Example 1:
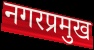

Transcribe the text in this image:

नगरप्रमुख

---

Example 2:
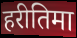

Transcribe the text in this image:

हरीतिमा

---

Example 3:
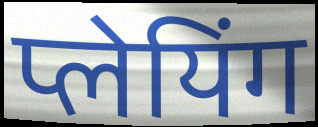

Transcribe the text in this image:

प्लेयिंग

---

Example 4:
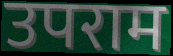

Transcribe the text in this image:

उपराम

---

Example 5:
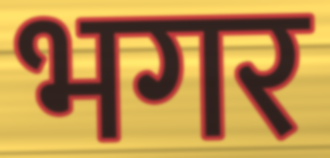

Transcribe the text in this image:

भगर